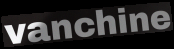
vanchine